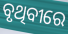
ବୃଥିବୀରେ